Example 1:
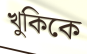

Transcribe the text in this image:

খুকিকে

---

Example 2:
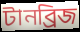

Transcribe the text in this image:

টানব্রিজ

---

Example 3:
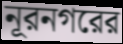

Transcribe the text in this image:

নূরনগরের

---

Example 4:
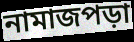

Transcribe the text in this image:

নামাজপড়া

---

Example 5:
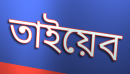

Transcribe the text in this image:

তাইয়েব